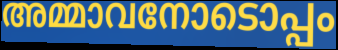
അമ്മാവനോടൊപ്പം